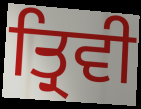
ਤ੍ਰਿਵੀ